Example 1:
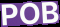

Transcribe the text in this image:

POB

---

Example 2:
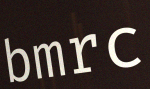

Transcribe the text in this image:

bmrc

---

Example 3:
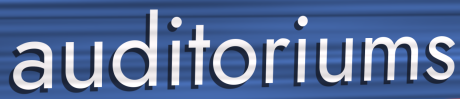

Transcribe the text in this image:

auditoriums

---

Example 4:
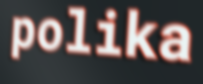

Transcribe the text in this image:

polika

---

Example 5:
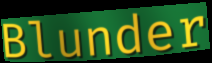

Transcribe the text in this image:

Blunder